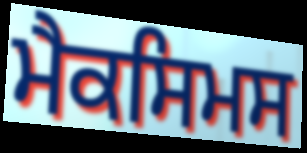
ਮੈਕਸਿਮਸ